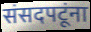
संसदपटूंना